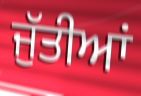
ਜੁੱਤੀਆਂ